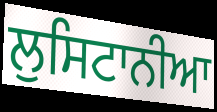
ਲੁਸਿਟਾਨੀਆ